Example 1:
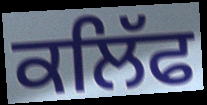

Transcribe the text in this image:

ਕਲਿੱਫ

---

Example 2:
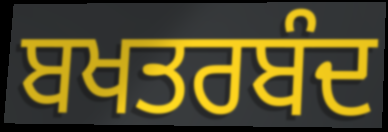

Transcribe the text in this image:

ਬਖਤਰਬੰਦ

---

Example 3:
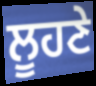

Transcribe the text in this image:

ਲੂਹਣੇ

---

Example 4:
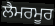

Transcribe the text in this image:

ਲੈਮਰਮੂਰ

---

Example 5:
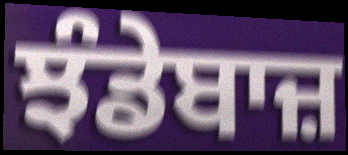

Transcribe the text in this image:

ਝੰਡੇਬਾਜ਼